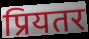
प्रियतर